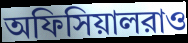
অফিসিয়ালরাও